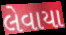
લેવાયા